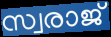
സ്വരാജ്